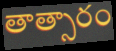
తాత్సారం